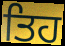
ਤਿਹ